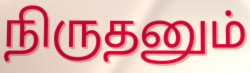
நிருதனும்